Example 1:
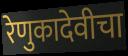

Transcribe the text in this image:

रेणुकादेवीचा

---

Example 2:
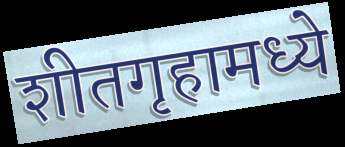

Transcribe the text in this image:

शीतगृहामध्ये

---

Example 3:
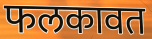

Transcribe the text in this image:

फलकावत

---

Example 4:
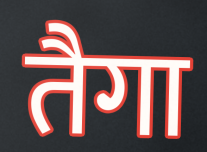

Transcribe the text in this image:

तैगा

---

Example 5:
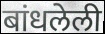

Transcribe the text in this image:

बांधलेली